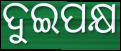
ଦୁଇପକ୍ଷ